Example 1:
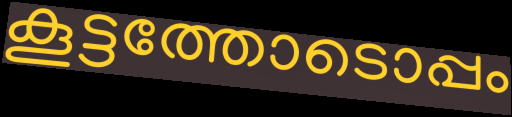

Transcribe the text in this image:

കൂട്ടത്തോടൊപ്പം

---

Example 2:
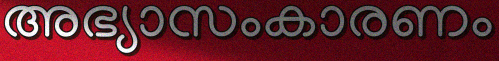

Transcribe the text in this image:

അഭ്യാസംകാരണം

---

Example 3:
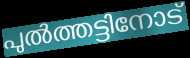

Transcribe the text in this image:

പുൽത്തട്ടിനോട്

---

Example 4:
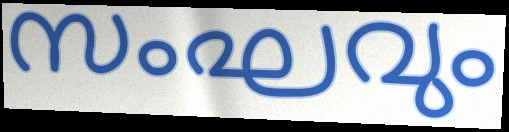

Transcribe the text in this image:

സംഘവും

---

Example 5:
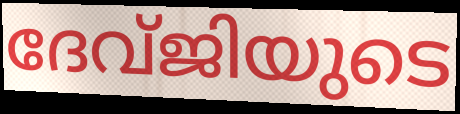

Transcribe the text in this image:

ദേവ്ജിയുടെ